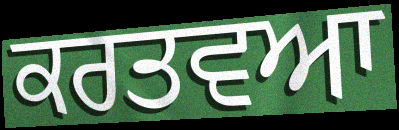
ਕਰਤਵਆ